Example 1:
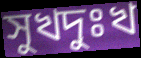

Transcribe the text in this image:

সুখদুঃখ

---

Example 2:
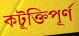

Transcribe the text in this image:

কটূক্তিপূর্ণ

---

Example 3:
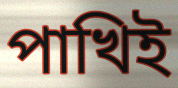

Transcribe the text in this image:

পাখিই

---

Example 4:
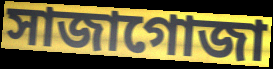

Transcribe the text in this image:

সাজাগোজা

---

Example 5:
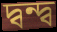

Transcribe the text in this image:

দ্বন্দ্ব